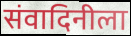
संवादिनीला